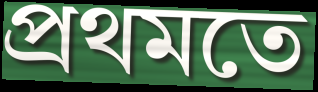
প্ৰথমতে